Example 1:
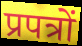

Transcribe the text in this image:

प्रपत्रों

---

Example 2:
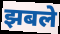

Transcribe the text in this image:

झबले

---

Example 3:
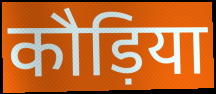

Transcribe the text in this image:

कौड़िया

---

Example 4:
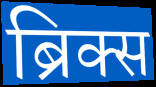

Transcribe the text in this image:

ब्रिक्स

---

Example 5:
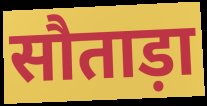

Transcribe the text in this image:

सौताड़ा